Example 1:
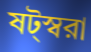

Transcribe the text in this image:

ষট্স্বরা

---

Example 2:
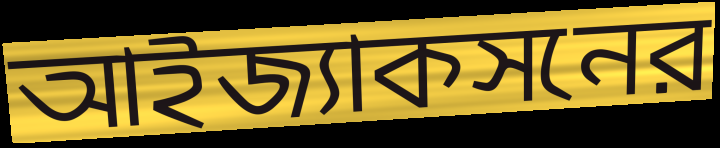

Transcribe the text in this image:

আইজ্যাকসনের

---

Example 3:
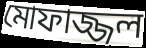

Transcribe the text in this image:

মোফাজ্জল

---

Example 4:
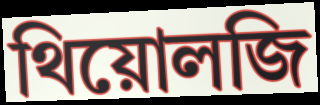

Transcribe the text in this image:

থিয়োলজি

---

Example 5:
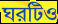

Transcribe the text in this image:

ঘরটিও